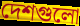
দেশগুলো